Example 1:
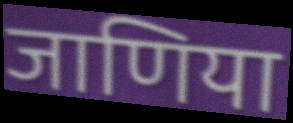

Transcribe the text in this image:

जाणिया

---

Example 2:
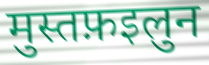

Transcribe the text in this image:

मुस्तफ़इलुन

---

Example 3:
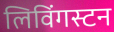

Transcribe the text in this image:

लिविंगस्टन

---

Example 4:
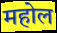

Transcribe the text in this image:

महोल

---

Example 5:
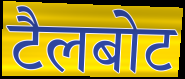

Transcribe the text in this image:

टैलबोट